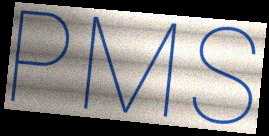
PMS